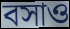
বসাও